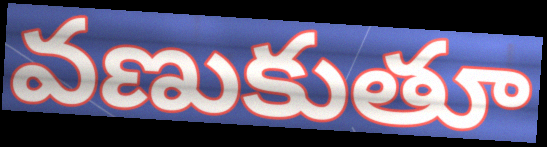
వణుకుతూ